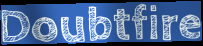
Doubtfire